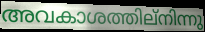
അവകാശത്തില്നിന്നു